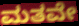
ಮತವೇ